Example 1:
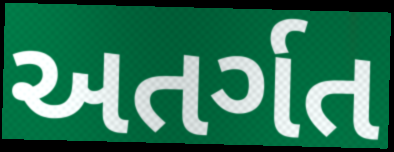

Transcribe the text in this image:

અતર્ગત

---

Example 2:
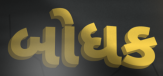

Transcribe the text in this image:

બોધક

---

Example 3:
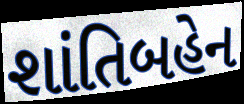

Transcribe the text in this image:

શાંતિબહેન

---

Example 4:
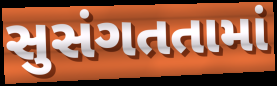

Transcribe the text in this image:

સુસંગતતામાં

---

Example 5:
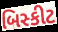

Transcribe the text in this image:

બિસ્કીટ